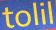
tolil